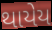
થાયેય